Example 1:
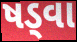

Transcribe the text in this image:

ષડ્વા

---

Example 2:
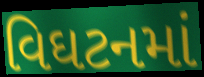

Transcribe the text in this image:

વિઘટનમાં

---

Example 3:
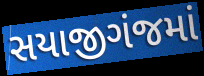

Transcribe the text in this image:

સયાજીગંજમાં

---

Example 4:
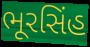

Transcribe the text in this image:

ભૂરસિંહ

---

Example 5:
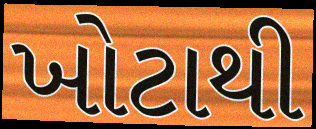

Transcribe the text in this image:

ખોટાથી